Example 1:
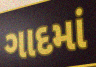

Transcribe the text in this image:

ગાદમાં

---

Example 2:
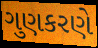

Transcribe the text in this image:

ગુણકરણે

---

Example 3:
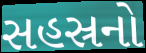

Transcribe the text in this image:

સહસ્રનો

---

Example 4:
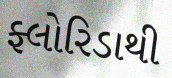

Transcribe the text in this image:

ફ્લોરિડાથી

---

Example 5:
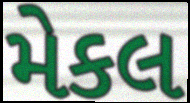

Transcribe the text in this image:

મેકલ